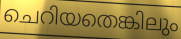
ചെറിയതെങ്കിലും